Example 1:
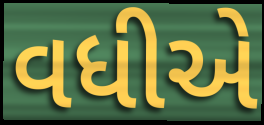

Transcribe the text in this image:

વધીએ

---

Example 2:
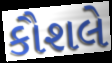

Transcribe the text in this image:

કૌશલે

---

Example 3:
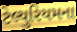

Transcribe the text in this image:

ટેલ્યુરિયમના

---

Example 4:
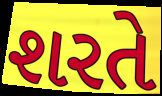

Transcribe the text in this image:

શરતે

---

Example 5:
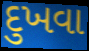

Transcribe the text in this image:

દુખવા